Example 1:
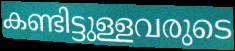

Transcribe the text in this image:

കണ്ടിട്ടുള്ളവരുടെ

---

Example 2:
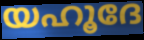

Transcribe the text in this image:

യഹൂദേ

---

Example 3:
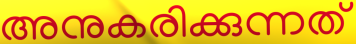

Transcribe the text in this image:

അനുകരിക്കുന്നത്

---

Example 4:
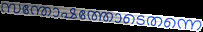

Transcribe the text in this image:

സന്തോഷത്തോടെതന്നെ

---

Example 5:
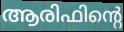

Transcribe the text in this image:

ആരിഫിന്റെ